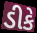
ડીકે